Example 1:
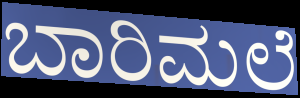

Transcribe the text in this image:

ಬಾರಿಮಲೆ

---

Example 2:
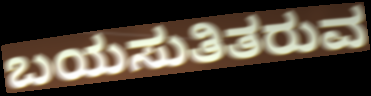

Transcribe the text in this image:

ಬಯಸುತಿತರುವ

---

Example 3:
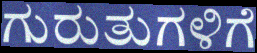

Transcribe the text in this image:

ಗುರುತುಗಳಿಗೆ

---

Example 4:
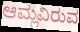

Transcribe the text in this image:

ಆಮ್ಲವಿರುವ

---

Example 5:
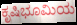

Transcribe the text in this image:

ಕೃಷಿಭೂಮಿಯ